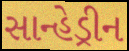
સાન્હેડ્રીન